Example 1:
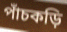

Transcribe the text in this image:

পাঁচকড়ি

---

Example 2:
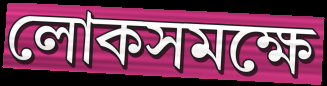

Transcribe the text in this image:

লোকসমক্ষে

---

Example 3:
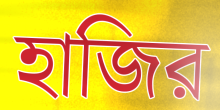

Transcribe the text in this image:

হাজির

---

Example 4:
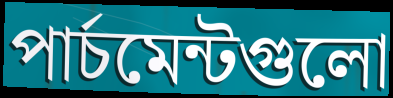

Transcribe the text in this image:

পার্চমেন্টগুলো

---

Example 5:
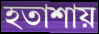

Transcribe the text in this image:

হতাশায়